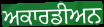
ਅਕਾਰਡੀਅਨ